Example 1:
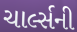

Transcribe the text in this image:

ચાર્લ્સની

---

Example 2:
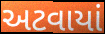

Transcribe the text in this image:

અટવાયાં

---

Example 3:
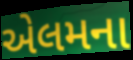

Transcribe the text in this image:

એલમના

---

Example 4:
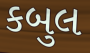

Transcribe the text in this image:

કબુલ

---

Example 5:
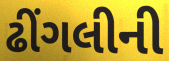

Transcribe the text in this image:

ઢીંગલીની